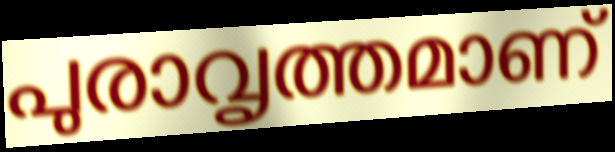
പുരാവൃത്തമാണ്